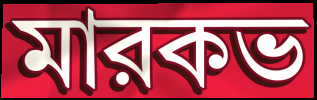
মারকভ